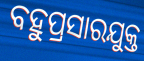
ବହୁପ୍ରସାରଯୁକ୍ତ